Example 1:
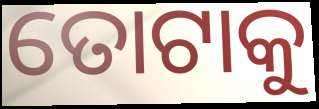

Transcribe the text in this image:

ତୋଟାକୁ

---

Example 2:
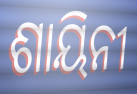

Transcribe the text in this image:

ଶାୟିନୀ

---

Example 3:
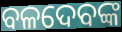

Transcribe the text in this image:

ବଳଦେବଙ୍କ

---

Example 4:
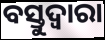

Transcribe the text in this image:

ବସ୍ତୁଦ୍ଵାରା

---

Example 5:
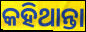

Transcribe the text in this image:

କହିଥାନ୍ତା